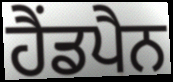
ਹੈਂਡਪੈਨ